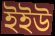
ইইউ